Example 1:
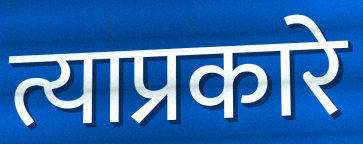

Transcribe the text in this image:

त्याप्रकारे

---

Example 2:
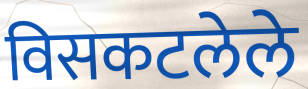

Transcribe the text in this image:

विसकटलेले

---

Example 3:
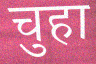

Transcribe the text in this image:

चुहा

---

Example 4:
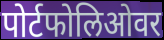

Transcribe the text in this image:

पोर्टफोलिओवर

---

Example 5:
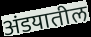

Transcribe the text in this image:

अंडयातील